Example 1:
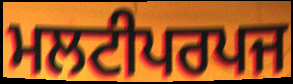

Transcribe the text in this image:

ਮਲਟੀਪਰਪਜ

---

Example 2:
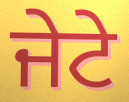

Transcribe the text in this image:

ਜੇਟੇ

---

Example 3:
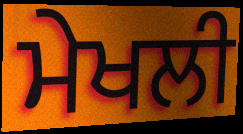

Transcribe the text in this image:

ਮੇਖਲੀ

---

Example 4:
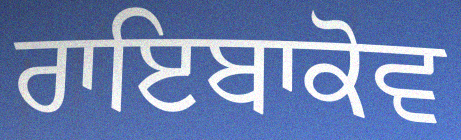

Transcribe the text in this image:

ਰਾਇਬਾਕੋਵ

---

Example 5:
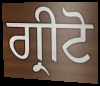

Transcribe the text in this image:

ਗ੍ਰੀਟੋ